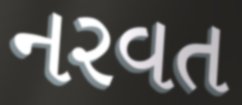
નરવત